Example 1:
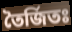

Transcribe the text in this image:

তৈর্জিতঃ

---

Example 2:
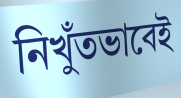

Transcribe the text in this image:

নিখুঁতভাবেই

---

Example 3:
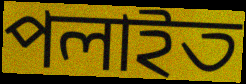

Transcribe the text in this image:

পলাইত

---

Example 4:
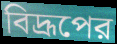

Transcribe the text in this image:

বিদ্রূপের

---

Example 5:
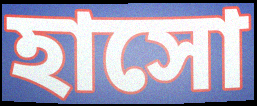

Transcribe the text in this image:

হাসো